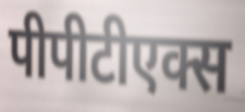
पीपीटीएक्स